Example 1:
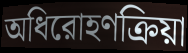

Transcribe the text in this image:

অধিরোহণক্রিয়া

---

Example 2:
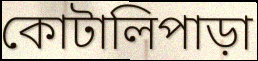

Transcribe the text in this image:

কোটালিপাড়া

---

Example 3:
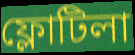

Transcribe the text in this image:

ফ্লোটিলা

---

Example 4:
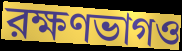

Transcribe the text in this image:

রক্ষণভাগও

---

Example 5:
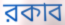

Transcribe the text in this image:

রকাব